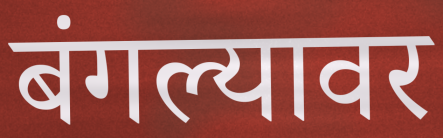
बंगल्यावर